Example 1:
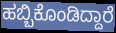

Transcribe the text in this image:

ಹಬ್ಬಿಕೊಂಡಿದ್ದಾರೆ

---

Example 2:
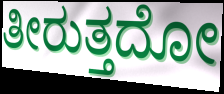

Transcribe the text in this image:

ತೀರುತ್ತದೋ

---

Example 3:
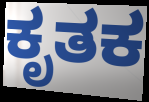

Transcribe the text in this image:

ಕೃತಕ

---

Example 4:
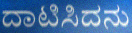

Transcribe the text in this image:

ದಾಟಿಸಿದನು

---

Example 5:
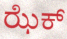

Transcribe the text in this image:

ಝೆಕ್